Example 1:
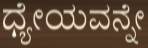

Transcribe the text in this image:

ಧ್ಯೇಯವನ್ನೇ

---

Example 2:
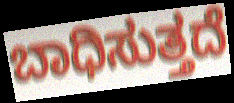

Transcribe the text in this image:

ಬಾಧಿಸುತ್ತದೆ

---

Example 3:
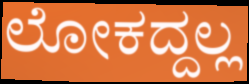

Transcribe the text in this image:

ಲೋಕದ್ದಲ್ಲ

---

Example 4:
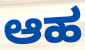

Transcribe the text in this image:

ಆಹ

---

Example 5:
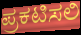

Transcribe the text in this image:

ಪ್ರಕಟಿಸಲಿ